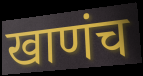
खाणंच